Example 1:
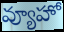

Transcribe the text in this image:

వ్యూహో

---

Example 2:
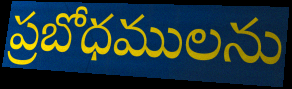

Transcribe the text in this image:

ప్రబోధములను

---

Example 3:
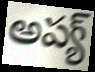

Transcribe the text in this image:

అప్య్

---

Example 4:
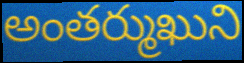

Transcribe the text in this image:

అంతర్ముఖుని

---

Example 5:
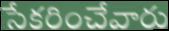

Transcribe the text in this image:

సేకరించేవారు